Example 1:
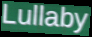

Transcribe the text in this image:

Lullaby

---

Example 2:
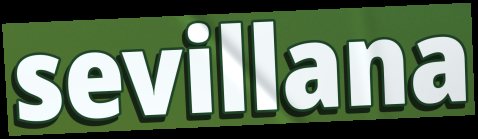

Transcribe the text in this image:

sevillana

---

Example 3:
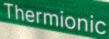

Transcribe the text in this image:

Thermionic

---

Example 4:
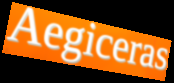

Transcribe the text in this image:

Aegiceras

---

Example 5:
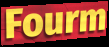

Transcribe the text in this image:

Fourm